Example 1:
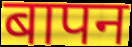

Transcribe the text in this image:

बापन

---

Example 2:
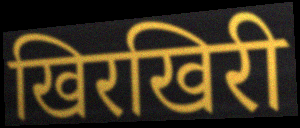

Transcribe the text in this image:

खिरखिरी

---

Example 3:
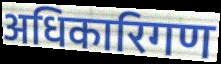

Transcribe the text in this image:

अधिकारिगण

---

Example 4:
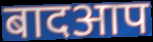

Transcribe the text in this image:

बादआप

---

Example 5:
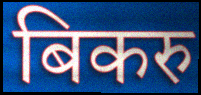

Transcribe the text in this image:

बिकरु